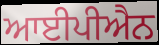
ਆਈਪੀਐਨ